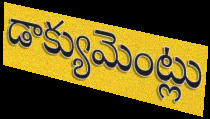
డాక్యుమెంట్లు